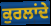
ਕੁਰਲਾਂਦੇ